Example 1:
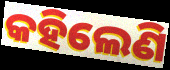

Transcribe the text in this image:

କହିଲେଣି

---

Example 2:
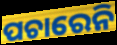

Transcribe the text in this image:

ପଚାରେନି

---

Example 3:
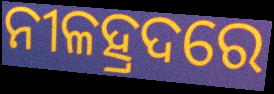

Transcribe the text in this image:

ନୀଳହ୍ରଦରେ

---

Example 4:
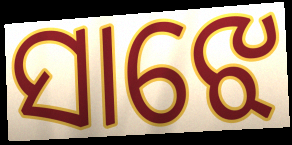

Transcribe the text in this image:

ସାଝେ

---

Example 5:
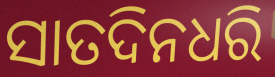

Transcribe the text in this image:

ସାତଦିନଧରି